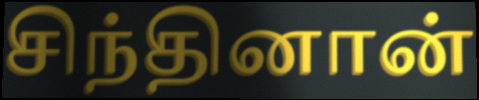
சிந்தினான்